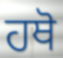
ਹਥੋ